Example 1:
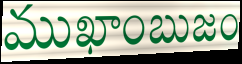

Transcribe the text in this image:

ముఖాంబుజం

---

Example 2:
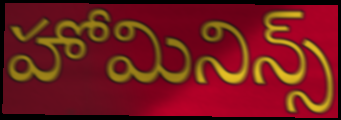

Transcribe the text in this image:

హోమినిన్స్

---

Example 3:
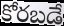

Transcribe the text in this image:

కోరబడే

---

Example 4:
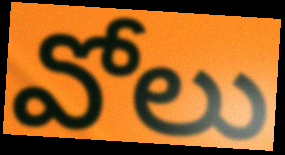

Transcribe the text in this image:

వోలు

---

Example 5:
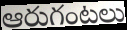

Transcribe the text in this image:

ఆరుగంటలు